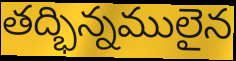
తద్భిన్నములైన